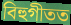
বিহুগীতত